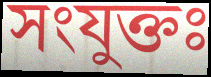
সংযুক্তঃ